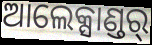
ଆଲେକ୍ସାଣ୍ଡର୍